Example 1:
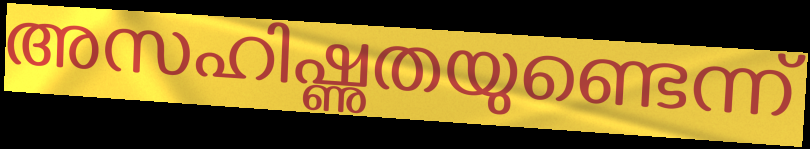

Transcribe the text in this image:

അസഹിഷ്ണുതയുണ്ടെന്ന്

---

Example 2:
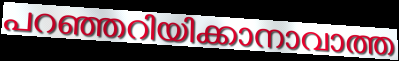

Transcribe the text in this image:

പറഞ്ഞറിയിക്കാനാവാത്ത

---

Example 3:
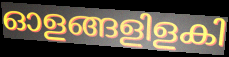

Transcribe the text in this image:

ഓളങ്ങളിളകി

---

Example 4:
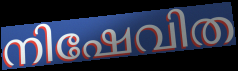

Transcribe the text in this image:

നിഷേവിത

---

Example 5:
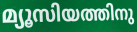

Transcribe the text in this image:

മ്യൂസിയത്തിനു